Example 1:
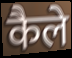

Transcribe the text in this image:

कैले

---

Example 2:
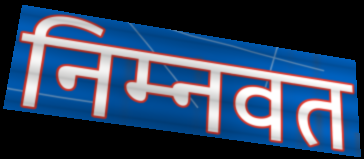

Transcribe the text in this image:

निम्नवत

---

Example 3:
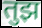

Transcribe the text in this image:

तुझ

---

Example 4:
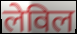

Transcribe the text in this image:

लेविल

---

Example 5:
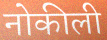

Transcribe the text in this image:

नोकीली